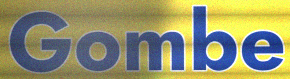
Gombe